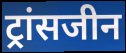
ट्रांसजीन